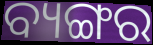
ବ୍ୟଙ୍ଗର